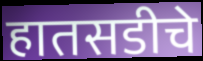
हातसडीचे